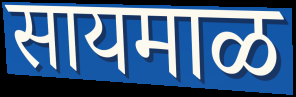
सायमाळ